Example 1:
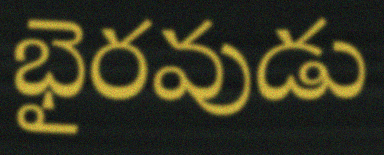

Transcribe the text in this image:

భైరవుడు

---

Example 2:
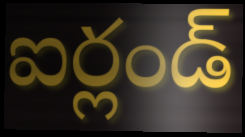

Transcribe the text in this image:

ఐర్లండ్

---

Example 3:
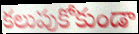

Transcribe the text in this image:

కలుపుకోకుండా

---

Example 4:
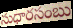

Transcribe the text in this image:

సుధారసంబు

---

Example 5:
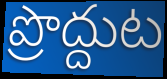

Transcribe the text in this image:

ప్రొద్దుట